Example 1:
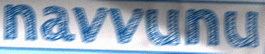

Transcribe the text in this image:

navvunu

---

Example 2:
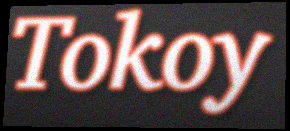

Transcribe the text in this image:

Tokoy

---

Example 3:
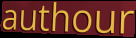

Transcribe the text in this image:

authour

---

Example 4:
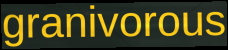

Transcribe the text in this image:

granivorous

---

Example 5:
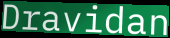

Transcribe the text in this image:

Dravidan